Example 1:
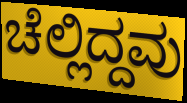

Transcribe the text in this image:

ಚೆಲ್ಲಿದ್ದವು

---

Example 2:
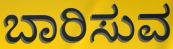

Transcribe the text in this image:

ಬಾರಿಸುವ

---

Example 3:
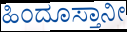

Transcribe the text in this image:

ಹಿಂದೂಸ್ತಾನೀ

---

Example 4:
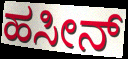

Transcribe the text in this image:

ಹಸೀನ್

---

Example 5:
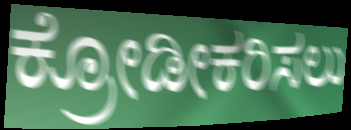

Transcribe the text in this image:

ಕ್ರೋಡೀಕರಿಸಲು